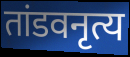
तांडवनृत्य